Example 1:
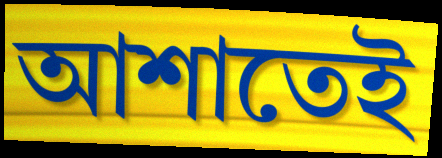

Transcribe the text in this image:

আশাতেই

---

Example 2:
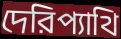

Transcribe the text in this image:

দেরিপ্যাথি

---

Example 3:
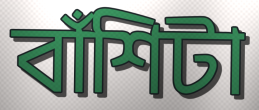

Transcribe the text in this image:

বাঁশিটা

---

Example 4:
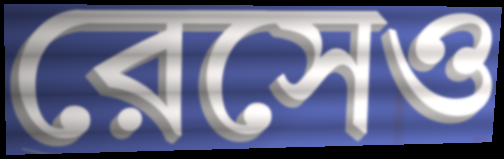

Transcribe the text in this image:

রেসেও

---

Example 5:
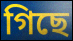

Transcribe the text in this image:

গিছে